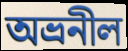
অভ্রনীল